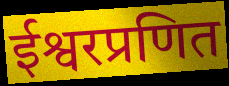
ईश्वरप्रणित